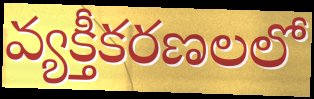
వ్యక్తీకరణలలో